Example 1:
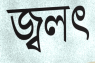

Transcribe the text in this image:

জ্বলৎ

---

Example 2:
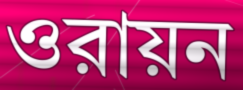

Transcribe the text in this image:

ওরায়ন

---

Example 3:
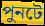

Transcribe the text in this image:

পুনটে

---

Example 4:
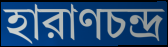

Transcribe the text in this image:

হারাণচন্দ্র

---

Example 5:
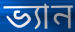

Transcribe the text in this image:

ভ্যান